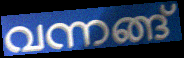
വന്നങ്ങ്